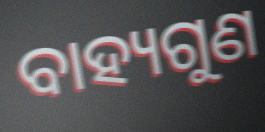
ବାହ୍ୟଗୁଣ